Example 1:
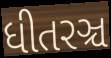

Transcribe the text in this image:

ધીતરઞ્ચ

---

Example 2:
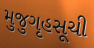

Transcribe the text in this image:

મુજુગૃહસૂચી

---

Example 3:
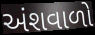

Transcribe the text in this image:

અંશવાળો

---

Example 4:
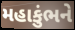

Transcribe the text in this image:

મહાકુંભને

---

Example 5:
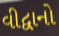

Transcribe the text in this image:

વીદ્વાનો